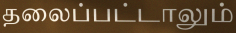
தலைப்பட்டாலும்